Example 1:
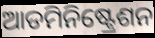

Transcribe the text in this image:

ଆଡମିନିଷ୍ଟ୍ରେଶନ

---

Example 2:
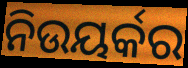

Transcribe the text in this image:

ନିଉୟର୍କର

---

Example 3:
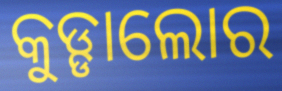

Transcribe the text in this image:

କୁଡ୍ଡାଲୋର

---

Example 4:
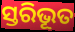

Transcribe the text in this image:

ସ୍ତରିଭୂତ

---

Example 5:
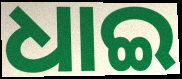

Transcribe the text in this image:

ଧାଇ